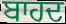
ਬਾਹਦ